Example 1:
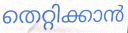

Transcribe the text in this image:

തെറ്റിക്കാൻ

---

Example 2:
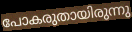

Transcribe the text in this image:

പോകരുതായിരുന്നു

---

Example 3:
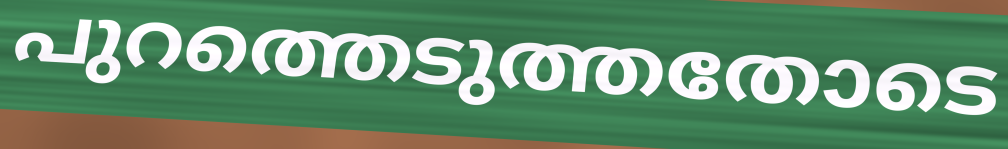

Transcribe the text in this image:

പുറത്തെടുത്തതോടെ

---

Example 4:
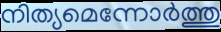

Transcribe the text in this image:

നിത്യമെന്നോർത്തു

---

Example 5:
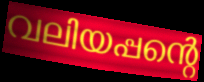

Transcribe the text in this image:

വലിയപ്പന്റെ